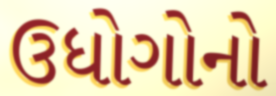
ઉધોગોનો